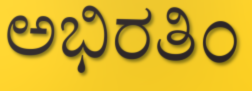
ಅಭಿರತಿಂ